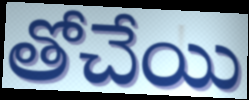
తోచేయి